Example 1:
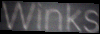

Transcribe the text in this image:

Winks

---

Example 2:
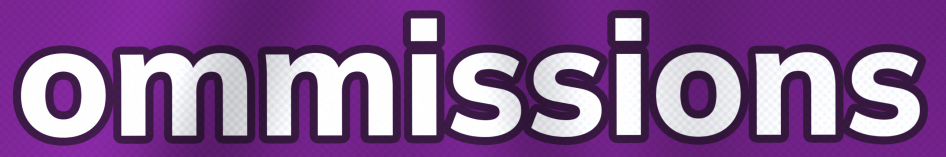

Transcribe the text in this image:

ommissions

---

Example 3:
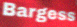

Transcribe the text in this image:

Bargess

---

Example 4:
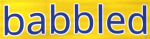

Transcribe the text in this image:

babbled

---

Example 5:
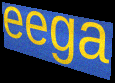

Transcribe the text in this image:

eega